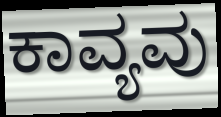
ಕಾವ್ಯವು